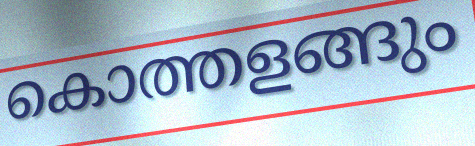
കൊത്തളങ്ങും